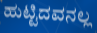
ಹುಟ್ಟಿದವನಲ್ಲ